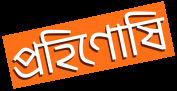
প্রহিণোষি